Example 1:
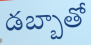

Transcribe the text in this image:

డబ్బాతో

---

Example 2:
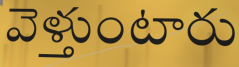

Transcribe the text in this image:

వెళ్తుంటారు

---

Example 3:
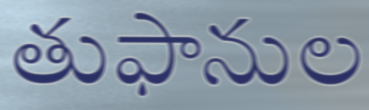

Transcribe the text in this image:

తుఫానుల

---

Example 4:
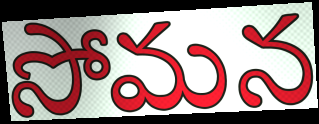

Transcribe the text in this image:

సోమన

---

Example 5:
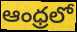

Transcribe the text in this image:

ఆంధ్రలో